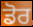
ਡੋਰ